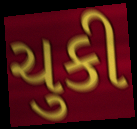
ચુકી